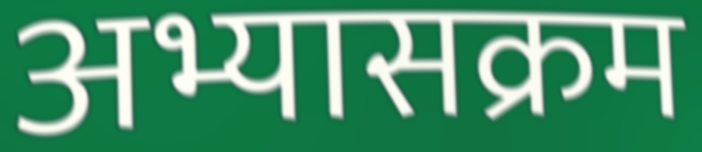
अभ्यासक्रम